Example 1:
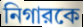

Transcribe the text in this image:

নিগারকে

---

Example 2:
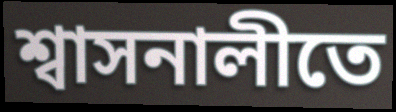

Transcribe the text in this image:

শ্বাসনালীতে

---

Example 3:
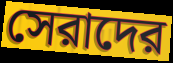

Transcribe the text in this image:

সেরাদের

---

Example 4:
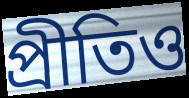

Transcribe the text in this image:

প্রীতিও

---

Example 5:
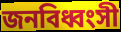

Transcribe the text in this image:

জনবিধ্বংসী